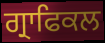
ਗ੍ਰਾਫਿਕਲ